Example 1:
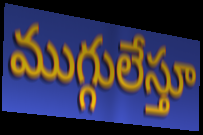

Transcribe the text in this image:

ముగ్గులేస్తూ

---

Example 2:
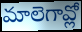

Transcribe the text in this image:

మాలెగావ్లో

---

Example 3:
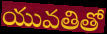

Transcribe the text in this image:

యువతితో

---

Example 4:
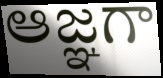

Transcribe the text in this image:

ఆజ్ఞగా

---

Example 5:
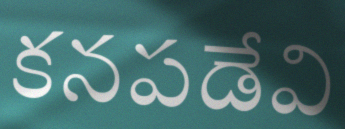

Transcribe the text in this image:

కనపడేవి